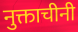
नुक्ताचीनी